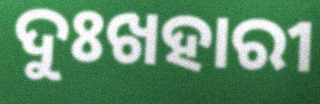
ଦୁଃଖହାରୀ